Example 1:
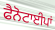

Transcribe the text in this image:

ਫੈਨੋਟਾਈਪਾਂ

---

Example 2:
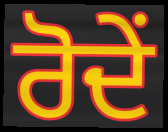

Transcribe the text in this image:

ਰੋਦੇਂ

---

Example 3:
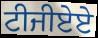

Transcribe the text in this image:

ਟੀਜੀਏਏ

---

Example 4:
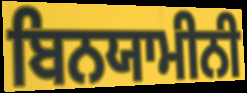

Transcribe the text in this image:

ਬਿਨਯਾਮੀਨੀ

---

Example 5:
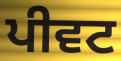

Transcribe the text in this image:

ਪੀਵਟ